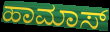
ಹಾಮಾಸ್